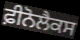
ਫ਼ੀਨੋਲੈਕਸ